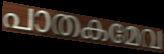
പാതകമേവ